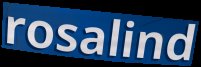
rosalind